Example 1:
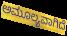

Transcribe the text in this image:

ಅಮೂಲ್ಯವಾಗಿದೆ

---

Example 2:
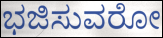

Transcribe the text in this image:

ಭಜಿಸುವರೋ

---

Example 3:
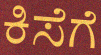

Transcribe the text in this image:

ಕಿಸೆಗೆ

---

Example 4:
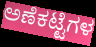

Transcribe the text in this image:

ಅಣೆಕಟ್ಟೆಗಳ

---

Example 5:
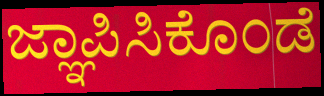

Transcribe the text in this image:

ಜ್ಞಾಪಿಸಿಕೊಂಡೆ